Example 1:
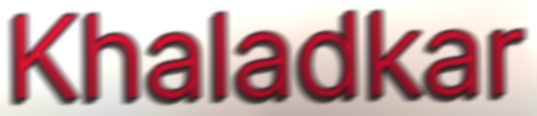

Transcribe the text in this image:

Khaladkar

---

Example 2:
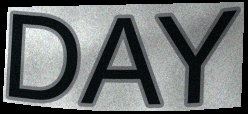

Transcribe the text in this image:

DAY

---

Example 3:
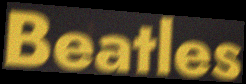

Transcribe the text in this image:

Beatles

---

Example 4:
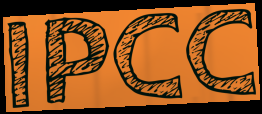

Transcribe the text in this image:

IPCC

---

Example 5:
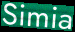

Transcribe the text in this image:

Simia